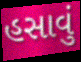
હસાવું